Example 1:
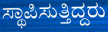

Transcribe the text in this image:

ಸ್ಥಾಪಿಸುತ್ತಿದ್ದರು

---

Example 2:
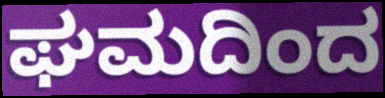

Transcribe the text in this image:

ಘಮದಿಂದ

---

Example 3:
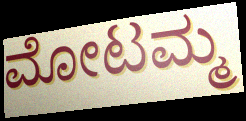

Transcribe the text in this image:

ಮೋಟಮ್ಮ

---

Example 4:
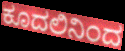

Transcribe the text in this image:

ಕೂದಲಿನಿಂದ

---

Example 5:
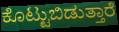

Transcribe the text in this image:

ಕೊಟ್ಟುಬಿಡುತ್ತಾರೆ